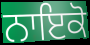
ਨਾਇਕੋ